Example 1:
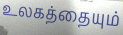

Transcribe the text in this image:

உலகத்தையும்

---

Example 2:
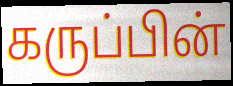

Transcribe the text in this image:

கருப்பின்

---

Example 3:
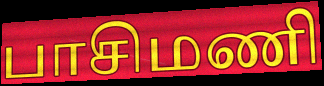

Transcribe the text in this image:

பாசிமணி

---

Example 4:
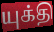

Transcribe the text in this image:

யுக்தி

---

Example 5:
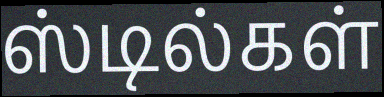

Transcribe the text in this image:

ஸ்டில்கள்